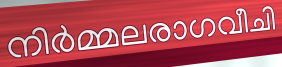
നിർമ്മലരാഗവീചി